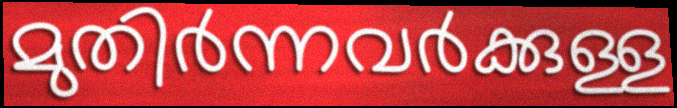
മുതിർന്നവർക്കുള്ള